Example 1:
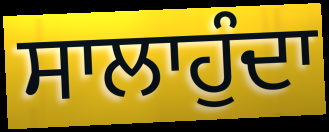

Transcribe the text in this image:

ਸਾਲਾਹੁੰਦਾ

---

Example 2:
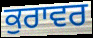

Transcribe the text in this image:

ਕੁਰਾਵਰ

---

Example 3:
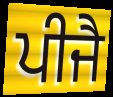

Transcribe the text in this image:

ਪੀਜੈ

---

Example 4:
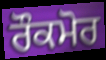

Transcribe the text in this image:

ਰੌਕਮੋਰ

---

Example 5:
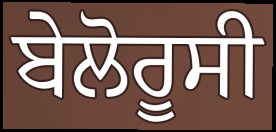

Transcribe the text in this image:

ਬੇਲੋਰੂਸੀ